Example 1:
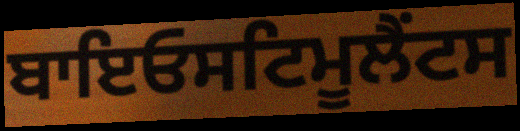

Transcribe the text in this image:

ਬਾਇਓਸਟਿਮੂਲੈਂਟਸ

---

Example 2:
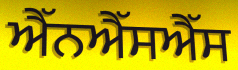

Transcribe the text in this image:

ਐੱਨਐੱਸਐੱਸ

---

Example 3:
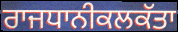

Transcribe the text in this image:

ਰਾਜਧਾਨੀਕਲਕੱਤਾ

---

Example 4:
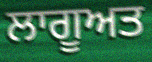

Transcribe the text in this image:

ਲਾਗੂਅਤ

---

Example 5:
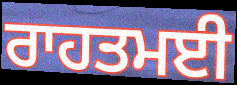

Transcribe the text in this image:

ਰਾਹਤਮਈ